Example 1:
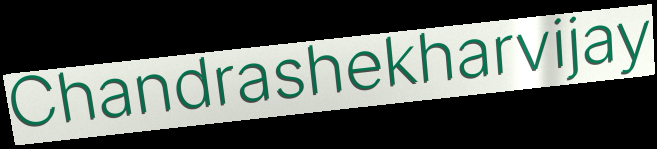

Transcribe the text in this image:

Chandrashekharvijay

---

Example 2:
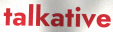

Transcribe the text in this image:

talkative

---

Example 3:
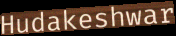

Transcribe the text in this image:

Hudakeshwar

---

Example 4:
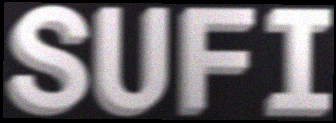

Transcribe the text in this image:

SUFI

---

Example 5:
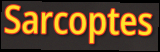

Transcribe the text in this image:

Sarcoptes